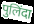
पुलिंदा